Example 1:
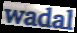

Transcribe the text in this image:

wadal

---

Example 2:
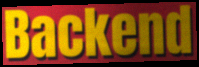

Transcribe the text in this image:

Backend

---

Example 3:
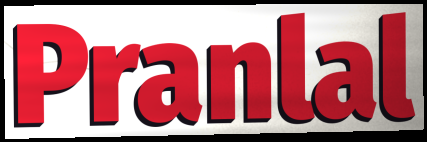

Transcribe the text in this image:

Pranlal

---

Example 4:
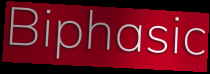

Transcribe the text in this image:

Biphasic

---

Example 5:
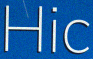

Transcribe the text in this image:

Hic